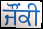
ਜੌਂਕੀ